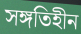
সঙ্গতিহীন